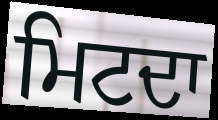
ਮਿਟਦਾ